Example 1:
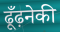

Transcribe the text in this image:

ढूँढ़नेकी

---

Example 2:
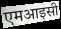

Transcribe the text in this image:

एमआइसी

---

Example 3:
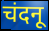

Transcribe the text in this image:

चंदनू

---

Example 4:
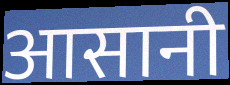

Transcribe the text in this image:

आसानी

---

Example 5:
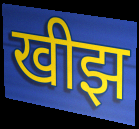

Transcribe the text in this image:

खीझ